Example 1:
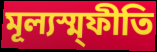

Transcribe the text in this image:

মূল্যস্ম্ফীতি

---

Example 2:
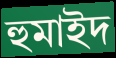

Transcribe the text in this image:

হুমাইদ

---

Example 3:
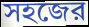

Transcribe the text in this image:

সহজের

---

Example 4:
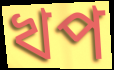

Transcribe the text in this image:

খপ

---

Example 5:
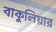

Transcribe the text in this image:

বাকুলিয়ার